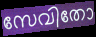
സേവിതോ